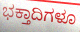
ಭಕ್ತಾದಿಗಳೂ